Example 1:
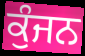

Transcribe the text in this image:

ਕੁੰਜਨ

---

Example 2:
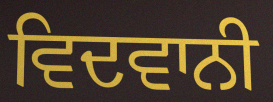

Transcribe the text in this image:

ਵਿਦਵਾਨੀ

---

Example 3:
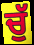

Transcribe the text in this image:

ਚੁੱ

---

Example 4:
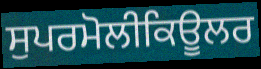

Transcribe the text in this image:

ਸੁਪਰਮੋਲੀਕਿਊਲਰ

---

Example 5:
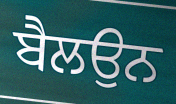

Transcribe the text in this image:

ਬੈਲਉਨ